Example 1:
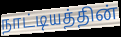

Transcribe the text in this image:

நாட்டியத்தின்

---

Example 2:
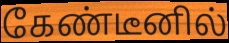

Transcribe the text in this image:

கேண்டீனில்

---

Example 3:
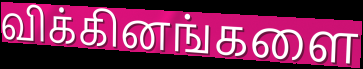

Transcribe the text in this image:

விக்கினங்களை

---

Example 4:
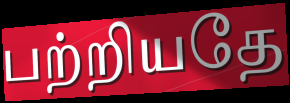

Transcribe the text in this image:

பற்றியதே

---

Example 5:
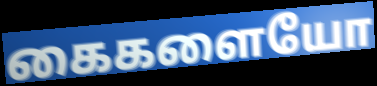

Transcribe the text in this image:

கைகளையோ